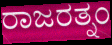
ರಾಜರತ್ನಂ